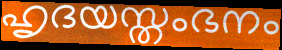
ഹൃദയസ്തംഭനം